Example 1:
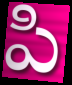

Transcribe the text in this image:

పి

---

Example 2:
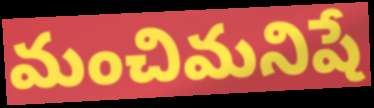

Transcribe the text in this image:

మంచిమనిషే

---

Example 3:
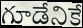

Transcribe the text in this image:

గూడేనికే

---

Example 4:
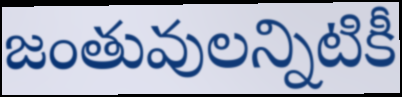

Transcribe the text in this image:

జంతువులన్నిటికీ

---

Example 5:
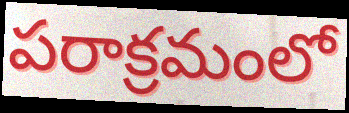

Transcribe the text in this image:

పరాక్రమంలో